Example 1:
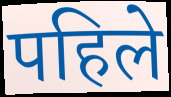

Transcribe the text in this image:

पहिले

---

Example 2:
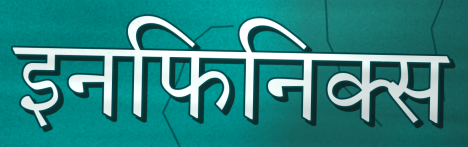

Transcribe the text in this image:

इनफिनिक्स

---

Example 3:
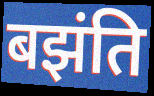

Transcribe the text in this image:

बझंति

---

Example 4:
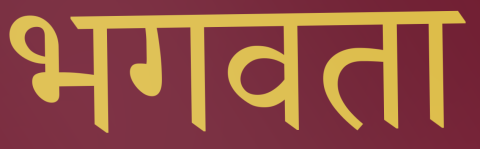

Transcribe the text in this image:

भगवता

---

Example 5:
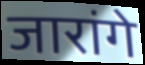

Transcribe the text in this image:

जारांगे